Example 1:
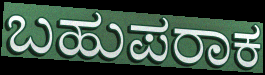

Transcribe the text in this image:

ಬಹುಪರಾಕ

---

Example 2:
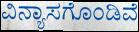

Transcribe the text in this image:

ವಿನ್ಯಾಸಗೊಂಡಿವೆ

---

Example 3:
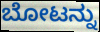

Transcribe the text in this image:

ಬೋಟನ್ನು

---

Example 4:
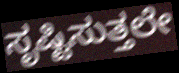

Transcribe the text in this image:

ಸೃಷ್ಟಿಸುತ್ತಲೇ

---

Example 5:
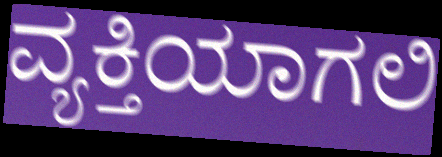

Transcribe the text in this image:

ವ್ಯಕ್ತಿಯಾಗಲಿ